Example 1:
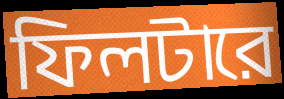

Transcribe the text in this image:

ফিলটারে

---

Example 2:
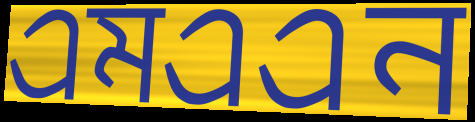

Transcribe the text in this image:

এমএএন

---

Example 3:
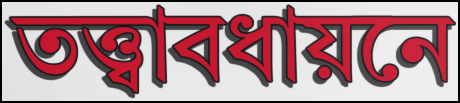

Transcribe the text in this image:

তত্ত্বাবধায়নে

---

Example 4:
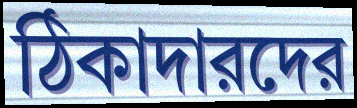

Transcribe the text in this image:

ঠিকাদারদের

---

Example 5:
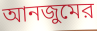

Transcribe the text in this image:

আনজুমের